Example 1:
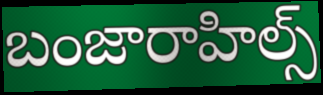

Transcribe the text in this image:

బంజారాహిల్స్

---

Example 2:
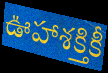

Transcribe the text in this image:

ఊహాశక్తికీ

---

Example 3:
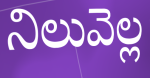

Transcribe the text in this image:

నిలువెల్ల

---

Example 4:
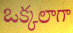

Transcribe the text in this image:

ఒక్కలాగా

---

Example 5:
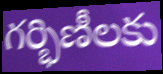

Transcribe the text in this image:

గర్భిణీలకు